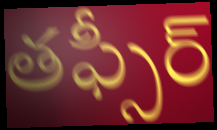
తఫ్సీర్